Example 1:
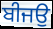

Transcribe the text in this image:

ਬੀਜਉ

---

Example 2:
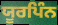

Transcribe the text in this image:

ਯੂਰਪਿੰਨ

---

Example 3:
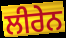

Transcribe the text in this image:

ਲੀਰੇਨ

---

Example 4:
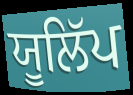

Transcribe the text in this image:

ਯੂਲਿੱਪ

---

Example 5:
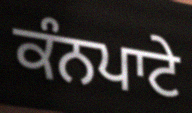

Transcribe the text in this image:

ਕੰਨਪਾਟੇ